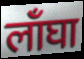
लाँघा